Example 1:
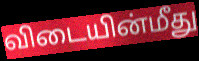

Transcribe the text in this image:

விடையின்மீது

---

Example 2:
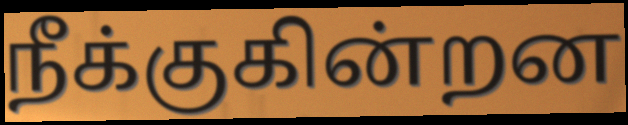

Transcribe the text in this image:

நீக்குகின்றன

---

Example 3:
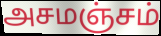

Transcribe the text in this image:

அசமஞ்சம்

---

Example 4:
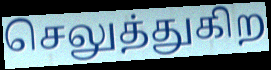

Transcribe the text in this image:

செலுத்துகிற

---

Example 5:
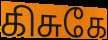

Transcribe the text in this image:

கிசுகே